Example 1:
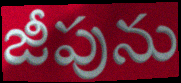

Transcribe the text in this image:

జీపును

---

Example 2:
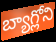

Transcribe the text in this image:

బ్యాగ్లోని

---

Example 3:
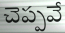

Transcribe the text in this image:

చెప్పవే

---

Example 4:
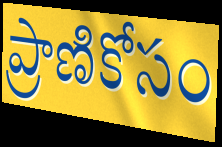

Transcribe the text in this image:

ప్రాణికోసం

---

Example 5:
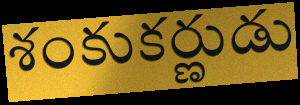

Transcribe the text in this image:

శంకుకర్ణుడు